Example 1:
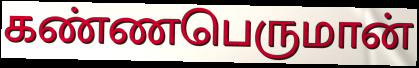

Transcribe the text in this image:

கண்ணபெருமான்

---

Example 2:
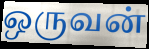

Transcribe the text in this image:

ஒருவன்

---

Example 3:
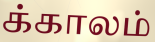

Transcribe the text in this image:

க்காலம்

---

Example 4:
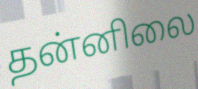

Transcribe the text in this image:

தன்னிலை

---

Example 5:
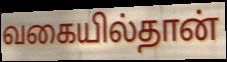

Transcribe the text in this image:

வகையில்தான்